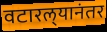
वटारल्यानंतर